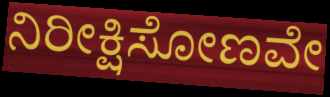
ನಿರೀಕ್ಷಿಸೋಣವೇ